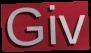
Giv